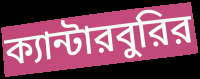
ক্যান্টারবুরির